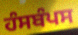
ਹੰਸਬੰਪਸ